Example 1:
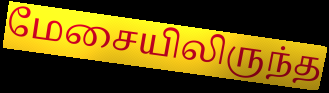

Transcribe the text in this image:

மேசையிலிருந்த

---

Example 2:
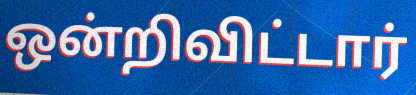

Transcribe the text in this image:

ஒன்றிவிட்டார்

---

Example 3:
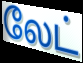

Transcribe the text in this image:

லேட்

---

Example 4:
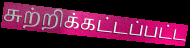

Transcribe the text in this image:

சுற்றிக்கட்டப்பட்ட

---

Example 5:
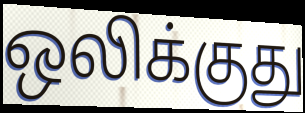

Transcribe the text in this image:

ஒலிக்குது